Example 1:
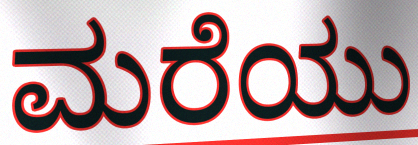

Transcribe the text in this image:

ಮರೆಯು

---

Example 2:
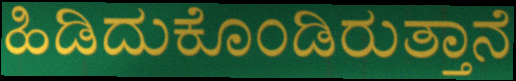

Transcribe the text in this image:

ಹಿಡಿದುಕೊಂಡಿರುತ್ತಾನೆ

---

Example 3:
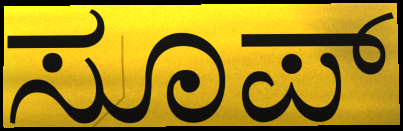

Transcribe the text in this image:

ಸೂಪ್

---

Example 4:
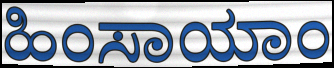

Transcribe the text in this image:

ಹಿಂಸಾಯಾಂ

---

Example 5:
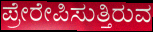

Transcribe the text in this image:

ಪ್ರೇರೇಪಿಸುತ್ತಿರುವ